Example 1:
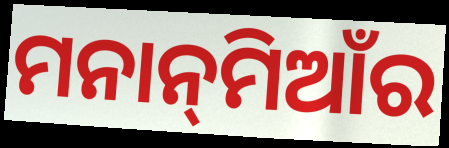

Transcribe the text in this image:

ମନାନ୍‌ମିଆଁର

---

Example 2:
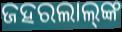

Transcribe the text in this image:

ଜହରଲାଲ୍‌ଙ୍କ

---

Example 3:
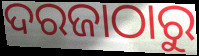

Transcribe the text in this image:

ଦରଜାଠାରୁ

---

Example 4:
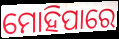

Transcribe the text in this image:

ମୋହିପାରେ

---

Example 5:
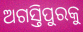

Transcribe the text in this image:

ଅଗସ୍ତିପୁରକୁ